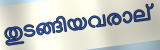
തുടങ്ങിയവരാല്